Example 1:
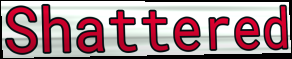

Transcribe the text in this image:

Shattered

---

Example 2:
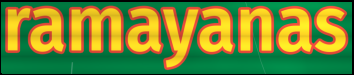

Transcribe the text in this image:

ramayanas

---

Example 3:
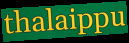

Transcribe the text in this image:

thalaippu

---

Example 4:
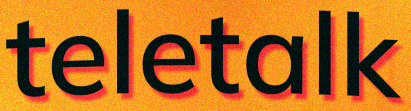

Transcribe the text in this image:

teletalk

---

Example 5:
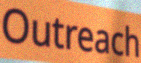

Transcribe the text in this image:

Outreach